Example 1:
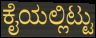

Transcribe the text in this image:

ಕೈಯಲ್ಲಿಟ್ಟು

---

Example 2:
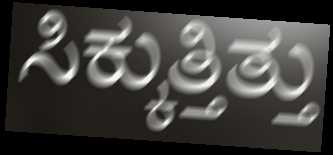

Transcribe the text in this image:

ಸಿಕ್ಕುತ್ತಿತ್ತು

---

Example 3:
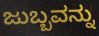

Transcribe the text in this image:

ಜುಬ್ಬವನ್ನು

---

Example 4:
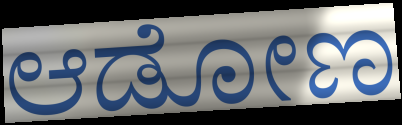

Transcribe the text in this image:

ಆಡೋಣ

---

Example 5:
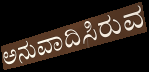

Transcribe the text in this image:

ಅನುವಾದಿಸಿರುವ